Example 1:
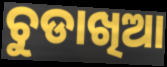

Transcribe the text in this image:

ଚୁଡାଖିଆ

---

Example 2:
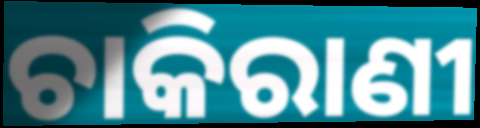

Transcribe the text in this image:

ଚାକିରାଣୀ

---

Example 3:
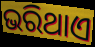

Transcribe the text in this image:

ଭରିଥାଏ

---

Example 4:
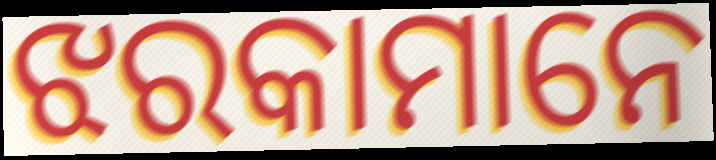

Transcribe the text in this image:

ଝରକାମାନେ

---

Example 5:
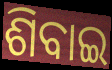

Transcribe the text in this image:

ଶିବାଇ